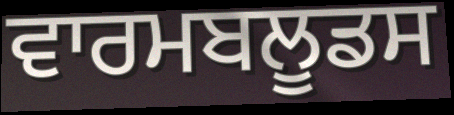
ਵਾਰਮਬਲੂਡਸ